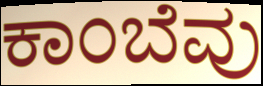
ಕಾಂಬೆವು